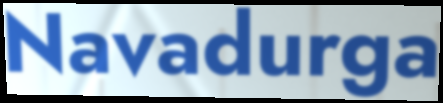
Navadurga